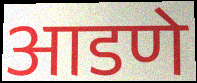
आडणे